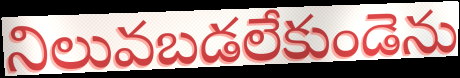
నిలువబడలేకుండెను